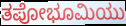
ತಪೋಭೂಮಿಯು